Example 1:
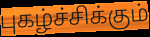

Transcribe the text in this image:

புகழ்ச்சிக்கும்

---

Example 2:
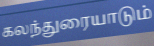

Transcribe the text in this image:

கலந்துரையாடும்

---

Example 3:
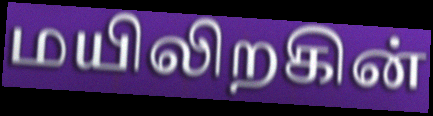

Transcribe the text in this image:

மயிலிறகின்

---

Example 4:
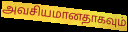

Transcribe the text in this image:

அவசியமானதாகவும்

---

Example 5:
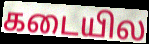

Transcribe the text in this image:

கடையில